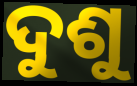
ଦୁଶୁ